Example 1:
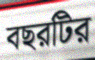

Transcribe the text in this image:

বছরটির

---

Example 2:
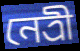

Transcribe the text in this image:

নেত্রী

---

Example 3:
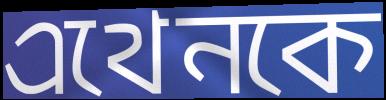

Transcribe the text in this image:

এথেনকে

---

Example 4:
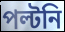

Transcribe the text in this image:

পল্টনি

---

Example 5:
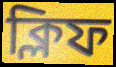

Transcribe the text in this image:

ক্লিফ